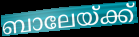
ബാലേയ്ക്ക്